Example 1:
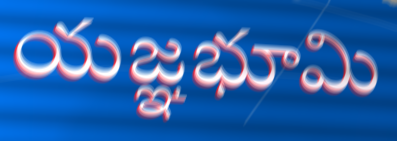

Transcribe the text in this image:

యజ్ఞభూమి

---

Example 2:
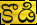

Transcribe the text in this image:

కొడి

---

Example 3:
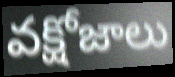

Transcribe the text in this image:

వక్షోజాలు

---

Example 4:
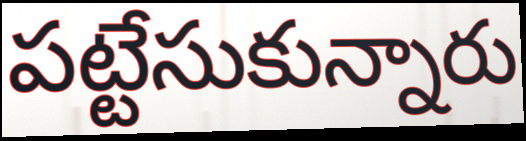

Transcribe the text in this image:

పట్టేసుకున్నారు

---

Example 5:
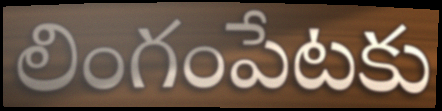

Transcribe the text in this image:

లింగంపేటకు